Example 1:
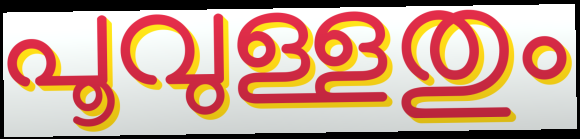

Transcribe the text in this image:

പൂവുള്ളതും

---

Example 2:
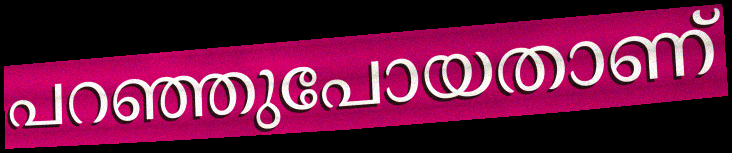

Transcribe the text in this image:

പറഞ്ഞുപോയതാണ്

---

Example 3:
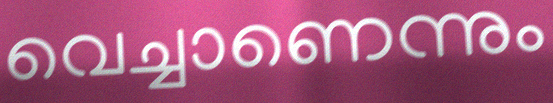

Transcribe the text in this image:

വെച്ചാണെന്നും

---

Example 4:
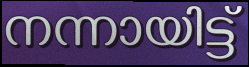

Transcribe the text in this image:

നന്നായിട്ട്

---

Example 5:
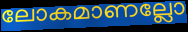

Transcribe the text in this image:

ലോകമാണല്ലോ